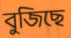
বুজিছে